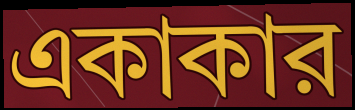
একাকার